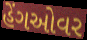
હેંગઓવર